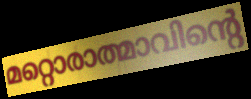
മറ്റൊരാത്മാവിന്റെ